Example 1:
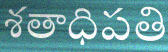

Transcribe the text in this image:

శతాధిపతి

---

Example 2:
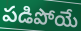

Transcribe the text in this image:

పడిపోయే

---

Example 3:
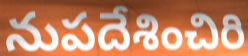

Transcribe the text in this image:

నుపదేశించిరి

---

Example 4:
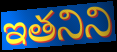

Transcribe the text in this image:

ఇతనిని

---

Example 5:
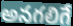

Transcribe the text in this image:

అనగలిగే